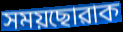
সময়ছোৱাক